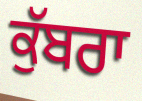
ਕੁੱਬਰਾ